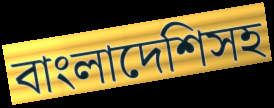
বাংলাদেশিসহ